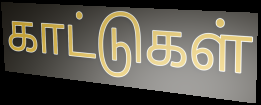
காட்டுகள்